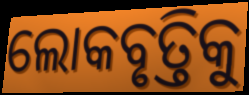
ଲୋକବୃତ୍ତିକୁ